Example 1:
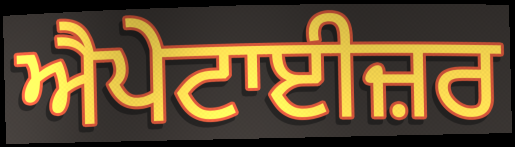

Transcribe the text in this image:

ਐਪੇਟਾਈਜ਼ਰ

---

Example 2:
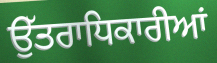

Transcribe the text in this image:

ਉੱਤਰਾਧਿਕਾਰੀਆਂ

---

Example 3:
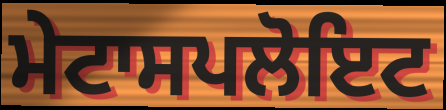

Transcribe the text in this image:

ਮੇਟਾਸਪਲੋਇਟ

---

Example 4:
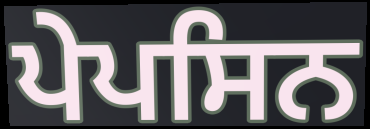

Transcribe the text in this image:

ਪੇਪਸਿਨ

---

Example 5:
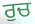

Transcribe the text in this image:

ਰੁਚ